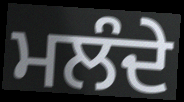
ਮਲੰਦੇ